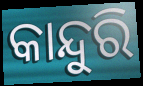
କାନ୍ଦୁରି